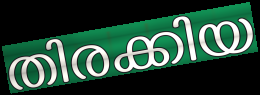
തിരക്കിയ